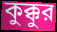
কুক্কুর